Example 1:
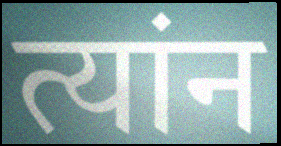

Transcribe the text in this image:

त्यांन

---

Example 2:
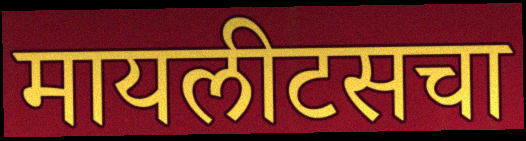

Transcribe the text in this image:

मायलीटसचा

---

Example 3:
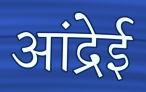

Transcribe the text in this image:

आंद्रेई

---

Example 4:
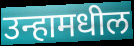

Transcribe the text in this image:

उन्हामधील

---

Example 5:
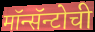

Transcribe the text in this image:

मॉन्सॅन्टोची